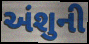
અંશુની